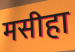
मसीहा